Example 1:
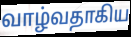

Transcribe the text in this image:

வாழ்வதாகிய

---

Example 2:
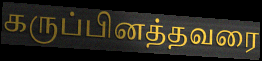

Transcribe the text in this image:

கருப்பினத்தவரை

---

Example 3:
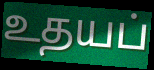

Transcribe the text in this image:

உதயப்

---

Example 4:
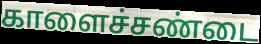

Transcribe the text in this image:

காளைச்சண்டை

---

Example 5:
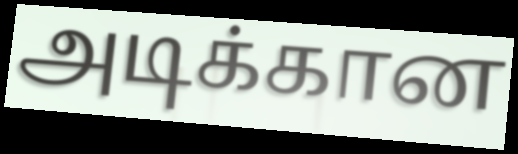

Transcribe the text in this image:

அடிக்கான